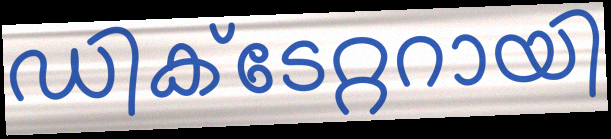
ഡിക്ടേറ്ററായി